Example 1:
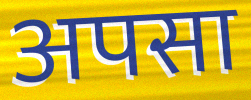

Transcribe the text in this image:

अपसा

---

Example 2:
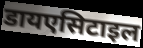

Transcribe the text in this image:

डायएसिटाइल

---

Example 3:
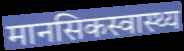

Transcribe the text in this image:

मानसिकस्वास्थ्य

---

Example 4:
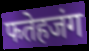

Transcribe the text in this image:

फतेहजंग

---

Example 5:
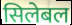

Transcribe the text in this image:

सिलेबल